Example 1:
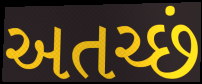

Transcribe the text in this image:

અતચ્છં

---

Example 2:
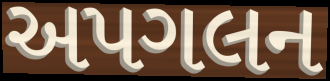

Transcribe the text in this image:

અપગલન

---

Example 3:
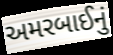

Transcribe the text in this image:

અમરબાઈનું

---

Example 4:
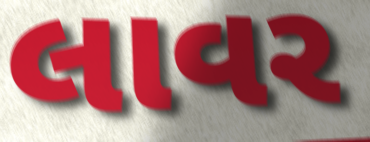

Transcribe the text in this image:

લાવર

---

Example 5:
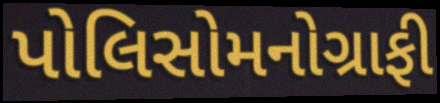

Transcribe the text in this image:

પોલિસોમનોગ્રાફી